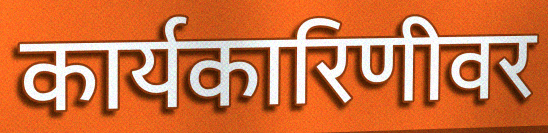
कार्यकारिणीवर